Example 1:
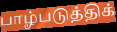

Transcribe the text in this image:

பாழ்படுத்திக்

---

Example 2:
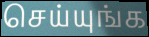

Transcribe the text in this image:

செய்யுங்க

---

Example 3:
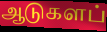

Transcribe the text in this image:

ஆடுகளப்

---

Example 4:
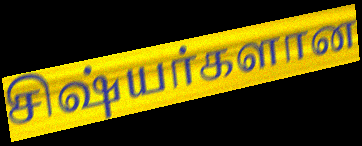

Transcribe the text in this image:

சிஷ்யர்களான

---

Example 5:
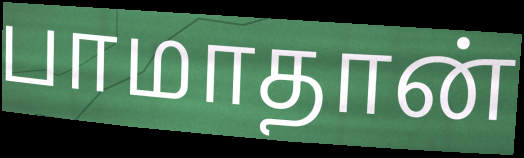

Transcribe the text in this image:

பாமாதான்